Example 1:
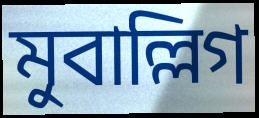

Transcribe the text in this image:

মুবাল্লিগ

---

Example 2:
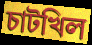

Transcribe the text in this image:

চাটখিল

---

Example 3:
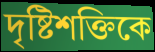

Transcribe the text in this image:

দৃষ্টিশক্তিকে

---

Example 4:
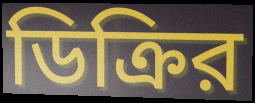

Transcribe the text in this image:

ডিক্রির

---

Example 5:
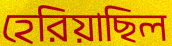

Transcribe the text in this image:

হেরিয়াছিল